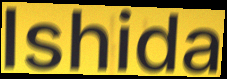
Ishida